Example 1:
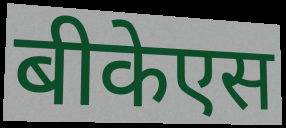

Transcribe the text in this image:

बीकेएस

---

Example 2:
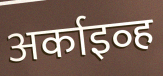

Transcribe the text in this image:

अर्काइव्ह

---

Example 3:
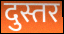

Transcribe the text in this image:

दुस्तर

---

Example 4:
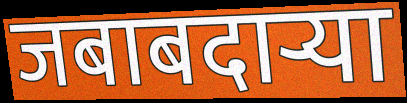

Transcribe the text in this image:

जबाबदार्‍या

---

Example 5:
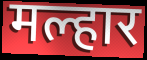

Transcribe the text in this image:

मल्हार